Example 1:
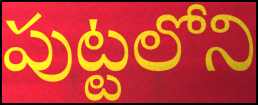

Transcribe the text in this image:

పుట్టలోని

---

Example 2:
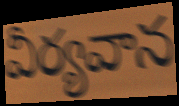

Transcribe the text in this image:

వీర్యవాన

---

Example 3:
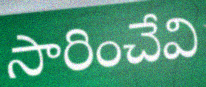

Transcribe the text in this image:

సారించేవి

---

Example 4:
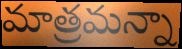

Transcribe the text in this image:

మాత్రమన్నా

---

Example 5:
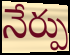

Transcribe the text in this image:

నేర్పు